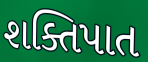
શક્તિપાત